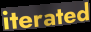
iterated